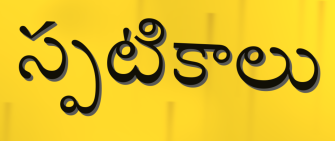
స్పటికాలు